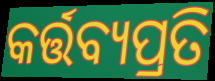
କର୍ତ୍ତବ୍ୟପ୍ରତି